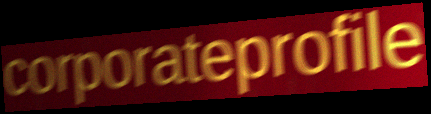
corporateprofile